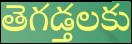
తెగడ్తలకు